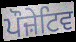
ਪੌਜ਼ੇਟਿਵ